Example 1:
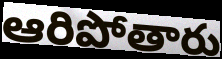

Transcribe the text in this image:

ఆరిపోతారు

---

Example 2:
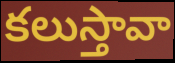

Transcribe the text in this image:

కలుస్తావా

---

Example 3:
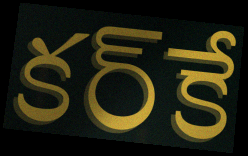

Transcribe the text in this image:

కర్‌కే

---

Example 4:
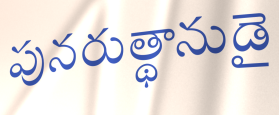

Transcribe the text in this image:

పునరుత్థానుడై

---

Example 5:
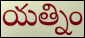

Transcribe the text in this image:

యత్నిం